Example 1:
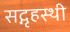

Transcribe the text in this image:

सद्गृहस्थी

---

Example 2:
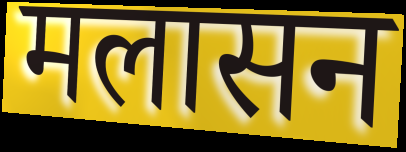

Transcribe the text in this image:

मलासन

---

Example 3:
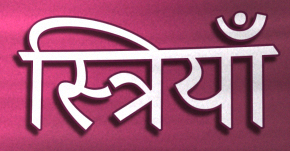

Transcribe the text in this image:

स्त्रियाँ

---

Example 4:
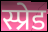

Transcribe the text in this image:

स्‍प्रेड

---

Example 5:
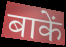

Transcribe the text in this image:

बाकें